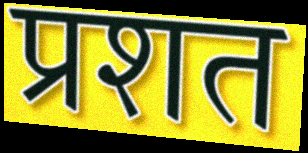
प्रशत